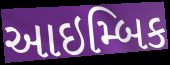
આઇમ્બિક